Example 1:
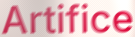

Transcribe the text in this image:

Artifice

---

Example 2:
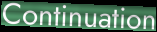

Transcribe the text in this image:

Continuation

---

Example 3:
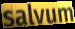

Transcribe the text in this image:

salvum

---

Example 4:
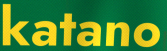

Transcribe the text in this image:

katano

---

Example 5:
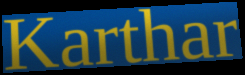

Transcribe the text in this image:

Karthar